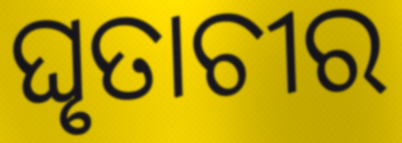
ଘୃତାଚୀର